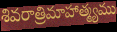
శివరాత్రిమాహాత్మ్యము